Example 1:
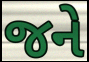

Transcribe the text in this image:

જને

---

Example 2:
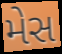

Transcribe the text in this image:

મેસ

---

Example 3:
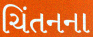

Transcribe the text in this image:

ચિંતનના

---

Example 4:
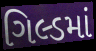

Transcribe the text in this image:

ગિલ્ડમાં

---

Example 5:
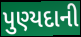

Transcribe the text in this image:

પુણ્યદાની